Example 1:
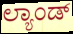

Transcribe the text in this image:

ಲ್ಯಾಂಡ್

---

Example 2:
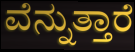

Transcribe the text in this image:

ವೆನ್ನುತ್ತಾರೆ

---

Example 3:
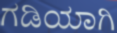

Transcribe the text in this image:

ಗಡಿಯಾಗಿ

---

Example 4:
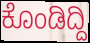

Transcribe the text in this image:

ಕೊಂಡಿದ್ದಿ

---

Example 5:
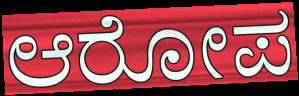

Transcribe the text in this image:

ಆರೋಪ